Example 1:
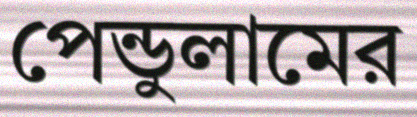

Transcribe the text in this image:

পেন্ডুলামের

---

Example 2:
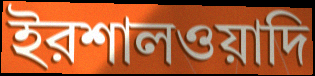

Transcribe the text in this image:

ইরশালওয়াদি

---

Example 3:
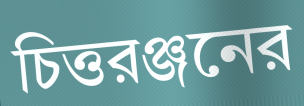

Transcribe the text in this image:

চিত্তরঞ্জনের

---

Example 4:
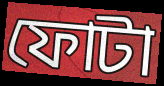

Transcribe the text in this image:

ফোটা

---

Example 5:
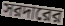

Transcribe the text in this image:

সরদারের